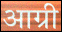
आग्री